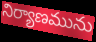
నిర్యాణమును